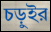
চড়ুইর